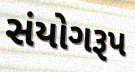
સંયોગરૂપ